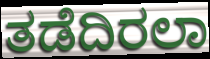
ತಡೆದಿರಲಾ